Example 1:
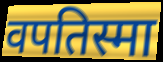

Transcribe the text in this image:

वपतिस्मा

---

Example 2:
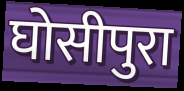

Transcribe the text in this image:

घोसीपुरा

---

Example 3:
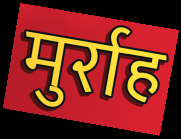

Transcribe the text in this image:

मुर्राह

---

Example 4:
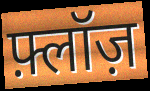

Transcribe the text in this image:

फ़्लॉज़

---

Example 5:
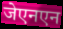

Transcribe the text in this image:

जेएनएन